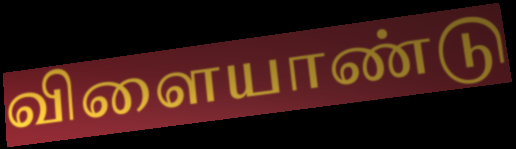
விளையாண்டு